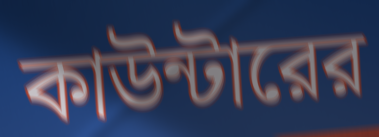
কাউন্টারের